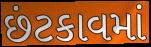
છંટકાવમાં